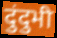
दुंदुभी